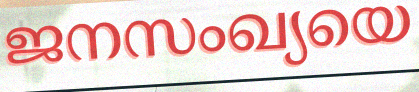
ജനസംഖ്യയെ